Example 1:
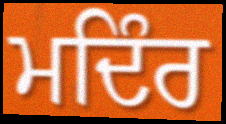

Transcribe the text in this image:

ਮਦਿੰਰ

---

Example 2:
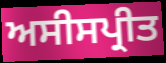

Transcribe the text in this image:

ਅਸੀਸਪ੍ਰੀਤ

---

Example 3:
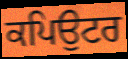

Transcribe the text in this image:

ਕਪਿਉਟਰ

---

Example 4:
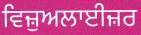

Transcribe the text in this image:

ਵਿਜ਼ੁਅਲਾਈਜ਼ਰ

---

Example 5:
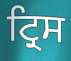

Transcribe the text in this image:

ਟ੍ਰਿਸ